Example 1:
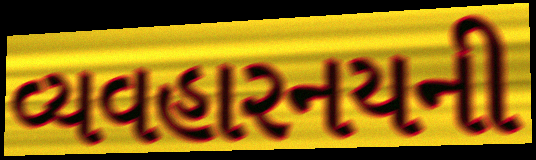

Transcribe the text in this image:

વ્યવહારનયની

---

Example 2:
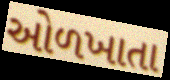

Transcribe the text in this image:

ઓળખાતા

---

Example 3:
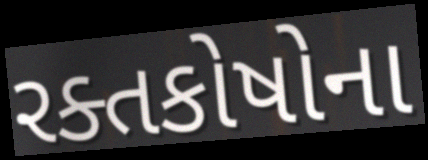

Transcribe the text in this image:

રક્તકોષોના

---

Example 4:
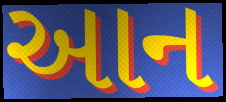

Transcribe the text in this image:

આન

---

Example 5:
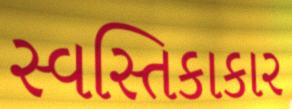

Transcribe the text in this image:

સ્વસ્તિકાકાર